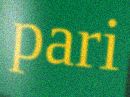
pari